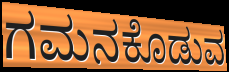
ಗಮನಕೊಡುವ